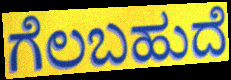
ಗೆಲಬಹುದೆ